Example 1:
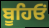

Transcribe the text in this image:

ਬੂਹਿਓਂ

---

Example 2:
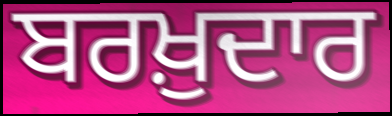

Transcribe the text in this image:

ਬਰਖ਼ੁਦਾਰ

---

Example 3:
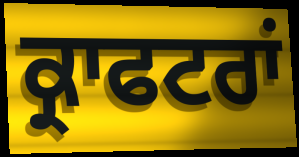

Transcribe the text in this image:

ਕ੍ਰਾਫਟਰਾਂ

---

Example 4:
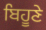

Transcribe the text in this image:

ਬਿਹੂਣੇ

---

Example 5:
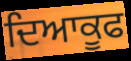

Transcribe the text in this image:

ਦਿਆਕੂਫ